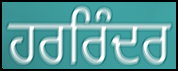
ਹਰਰਿੰਦਰ